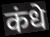
कंधे